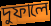
দুফালে